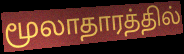
மூலாதாரத்தில்